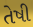
તેષી